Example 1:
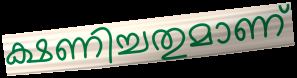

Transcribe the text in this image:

ക്ഷണിച്ചതുമാണ്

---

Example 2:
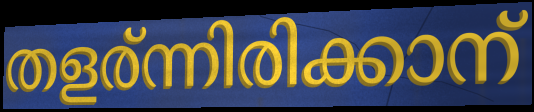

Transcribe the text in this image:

തളര്ന്നിരിക്കാന്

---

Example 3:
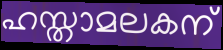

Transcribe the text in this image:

ഹസ്താമലകന്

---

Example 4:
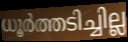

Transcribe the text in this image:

ധൂർത്തടിച്ചില്ല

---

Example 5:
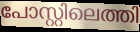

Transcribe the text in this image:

പോസ്റ്റിലെത്തി